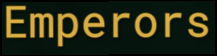
Emperors